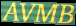
AVMB